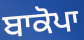
ਬਾਕੋਪਾ